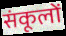
संकूलों